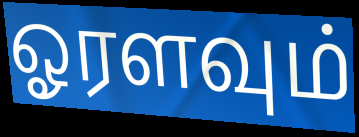
ஓரளவும்